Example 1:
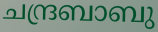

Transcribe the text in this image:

ചന്ദ്രബാബു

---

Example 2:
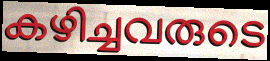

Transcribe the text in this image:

കഴിച്ചവരുടെ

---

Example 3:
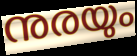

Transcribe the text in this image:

നുരയും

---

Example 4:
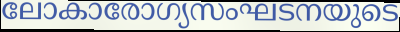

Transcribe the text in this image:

ലോകാരോഗ്യസംഘടനയുടെ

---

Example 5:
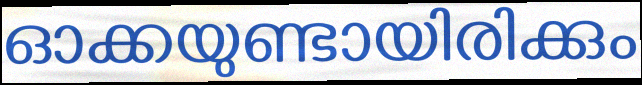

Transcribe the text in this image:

ഓക്കയുണ്ടായിരിക്കും